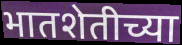
भातशेतीच्या